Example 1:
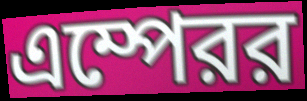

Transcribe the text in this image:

এম্পেরর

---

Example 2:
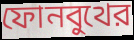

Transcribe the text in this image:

ফোনবুথের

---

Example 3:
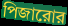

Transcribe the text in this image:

পিজারোর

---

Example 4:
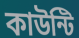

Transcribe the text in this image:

কাউন্টি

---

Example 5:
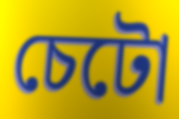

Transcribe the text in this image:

চেটো